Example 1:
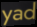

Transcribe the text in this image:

yad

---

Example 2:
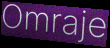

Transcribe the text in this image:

Omraje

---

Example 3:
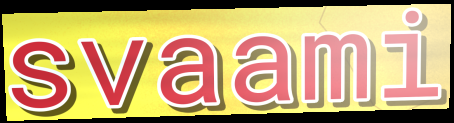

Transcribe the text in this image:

svaami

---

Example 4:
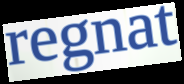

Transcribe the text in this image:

regnat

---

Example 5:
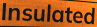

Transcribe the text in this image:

Insulated